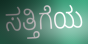
ಸತ್ತಿಗೆಯ